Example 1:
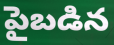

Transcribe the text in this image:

పైబడిన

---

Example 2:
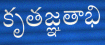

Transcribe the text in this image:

కృతజ్ఞతాభి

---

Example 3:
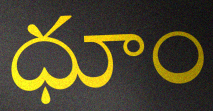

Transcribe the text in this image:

ధూం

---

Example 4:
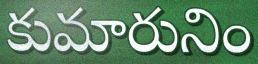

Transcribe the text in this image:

కుమారునిం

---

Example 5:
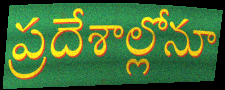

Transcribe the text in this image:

ప్రదేశాల్లోనూ